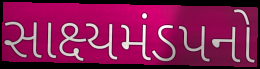
સાક્ષ્યમંડપનો